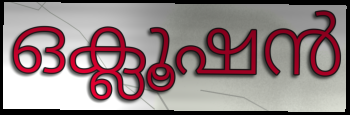
ഒക്ലൂഷൻ